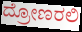
ದ್ರೋಣರಲಿ